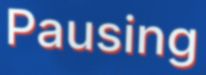
Pausing